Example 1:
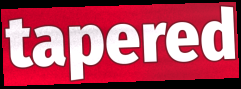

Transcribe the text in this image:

tapered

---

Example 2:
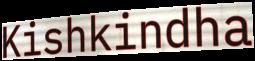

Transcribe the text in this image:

Kishkindha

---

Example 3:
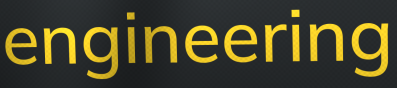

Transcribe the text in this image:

engineering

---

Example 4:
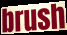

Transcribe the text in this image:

brush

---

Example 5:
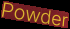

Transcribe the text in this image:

Powder